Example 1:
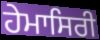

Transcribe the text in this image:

ਹੇਮਾਸਿਰੀ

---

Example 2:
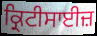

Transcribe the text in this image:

ਕ੍ਰਿਟੀਸਾਈਜ਼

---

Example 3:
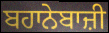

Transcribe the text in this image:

ਬਹਾਨੇਬਾਜ਼ੀ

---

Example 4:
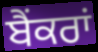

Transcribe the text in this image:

ਬੈਂਕਰਾਂ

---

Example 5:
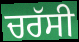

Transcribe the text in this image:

ਚਰੱਸੀ